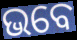
ଭବେ